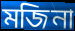
মজিনা